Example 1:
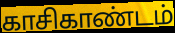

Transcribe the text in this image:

காசிகாண்டம்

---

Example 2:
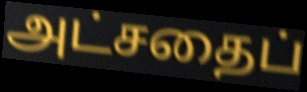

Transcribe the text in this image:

அட்சதைப்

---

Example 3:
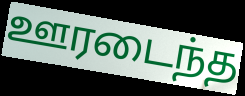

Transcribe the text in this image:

ஊரடைந்த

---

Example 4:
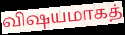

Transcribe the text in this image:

விஷயமாகத்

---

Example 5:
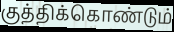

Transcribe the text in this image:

குத்திக்கொண்டும்